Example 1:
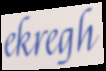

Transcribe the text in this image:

ekregh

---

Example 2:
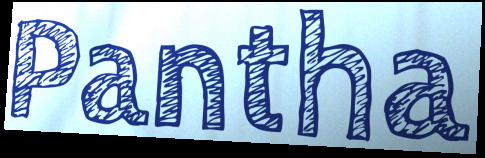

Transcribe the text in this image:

Pantha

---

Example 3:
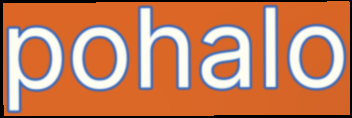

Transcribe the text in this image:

pohalo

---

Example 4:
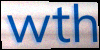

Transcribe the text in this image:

wth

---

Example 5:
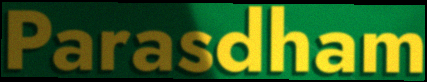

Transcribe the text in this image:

Parasdham